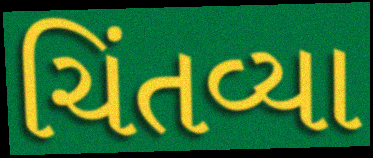
ચિંતવ્યા